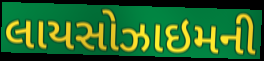
લાયસોઝાઇમની